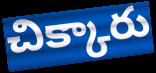
చిక్కారు